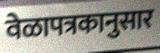
वेळापत्रकानुसार